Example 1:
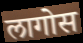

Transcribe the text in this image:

लागोस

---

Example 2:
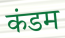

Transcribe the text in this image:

कंडम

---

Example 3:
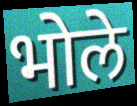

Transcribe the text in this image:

भोले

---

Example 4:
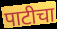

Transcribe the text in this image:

पाटीचा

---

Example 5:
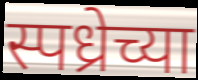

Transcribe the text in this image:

स्पध्रेच्या